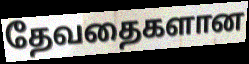
தேவதைகளான